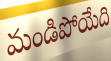
మండిపోయేది